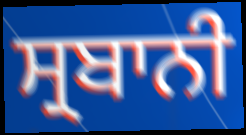
ਸ੍ਰਬਾਨੀ